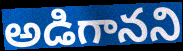
అడిగానని